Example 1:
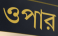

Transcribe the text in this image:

ওপার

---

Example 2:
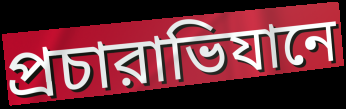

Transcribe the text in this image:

প্রচারাভিযানে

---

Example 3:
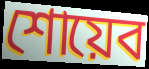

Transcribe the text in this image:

শোয়েব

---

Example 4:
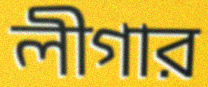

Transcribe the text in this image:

লীগার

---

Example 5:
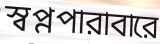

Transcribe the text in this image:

স্বপ্নপারাবারে